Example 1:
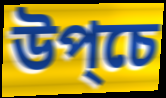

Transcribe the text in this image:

উপ্চে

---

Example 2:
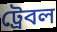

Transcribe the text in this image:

ট্রেবল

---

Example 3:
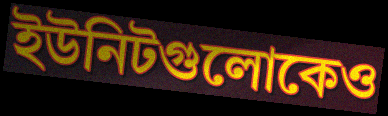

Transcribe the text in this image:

ইউনিটগুলোকেও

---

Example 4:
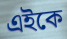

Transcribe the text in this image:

এইকে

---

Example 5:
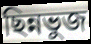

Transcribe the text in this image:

ছিন্নভুজ